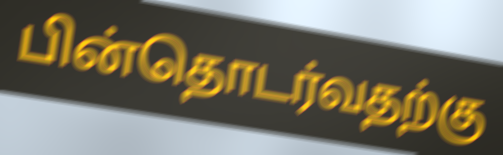
பின்தொடர்வதற்கு